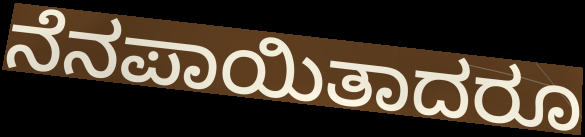
ನೆನಪಾಯಿತಾದರೂ